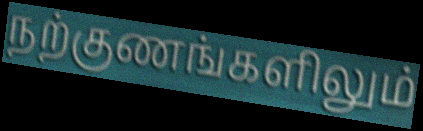
நற்குணங்களிலும்